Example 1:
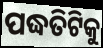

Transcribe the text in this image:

ପଦ୍ଧତିଟିକୁ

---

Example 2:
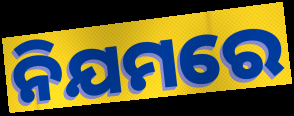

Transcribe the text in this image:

ନିଯମରେ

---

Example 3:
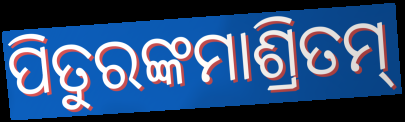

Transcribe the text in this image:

ପିତୁରଙ୍କମାଶ୍ରିତମ୍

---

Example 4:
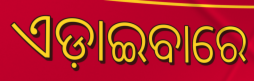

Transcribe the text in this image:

ଏଡ଼ାଇବାରେ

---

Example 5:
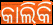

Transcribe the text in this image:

କାଲିକି